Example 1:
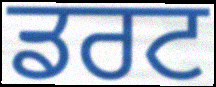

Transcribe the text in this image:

ਡਰਟ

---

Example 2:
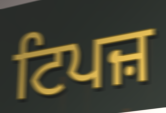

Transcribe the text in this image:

ਟਿਪਜ਼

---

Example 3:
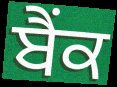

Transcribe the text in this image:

ਬੈਂਕ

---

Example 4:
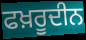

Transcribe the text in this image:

ਫਖ਼ਰੂਦੀਨ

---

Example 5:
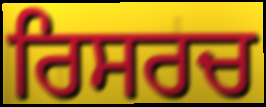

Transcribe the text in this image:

ਰਿਸਰਚ